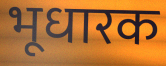
भूधारक